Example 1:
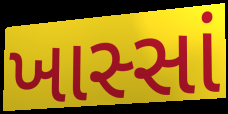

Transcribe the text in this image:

ખાસ્સાં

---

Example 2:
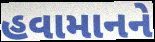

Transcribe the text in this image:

હવામાનને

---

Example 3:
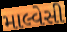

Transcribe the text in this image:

માલ્વેસી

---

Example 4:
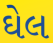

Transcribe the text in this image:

ઘેલ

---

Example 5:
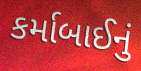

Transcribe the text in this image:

કર્માબાઈનું